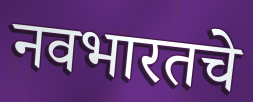
नवभारतचे